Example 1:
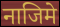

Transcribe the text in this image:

नाजिमे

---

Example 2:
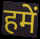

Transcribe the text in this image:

हमें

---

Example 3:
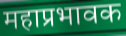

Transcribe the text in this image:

महाप्रभावक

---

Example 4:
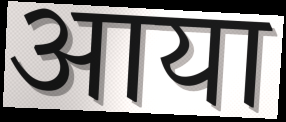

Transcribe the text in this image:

आया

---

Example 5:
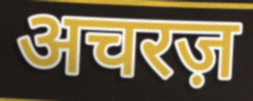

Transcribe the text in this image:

अचरज़